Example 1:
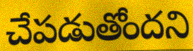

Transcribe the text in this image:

చేపడుతోందని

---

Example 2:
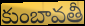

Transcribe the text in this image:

కుంబావతీ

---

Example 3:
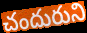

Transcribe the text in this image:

చందురుని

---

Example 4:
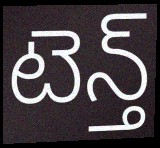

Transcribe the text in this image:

టెన్త్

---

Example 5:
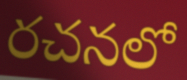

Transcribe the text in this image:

రచనలో